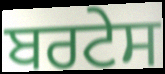
ਬਰਟੇਸ